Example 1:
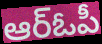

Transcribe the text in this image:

ఆర్ఓపీ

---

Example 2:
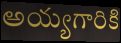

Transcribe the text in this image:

అయ్యగారికి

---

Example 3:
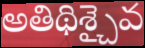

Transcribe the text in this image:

అతిథిశ్చైవ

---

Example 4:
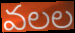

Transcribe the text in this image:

వలల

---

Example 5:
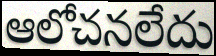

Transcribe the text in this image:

ఆలోచనలేదు